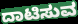
ದಾಟಿಸುವ